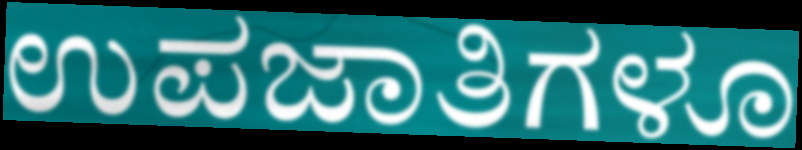
ಉಪಜಾತಿಗಳೂ